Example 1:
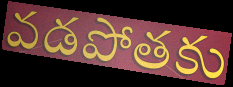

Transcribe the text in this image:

వడపోతకు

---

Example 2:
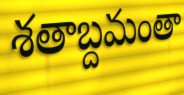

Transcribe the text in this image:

శతాబ్దమంతా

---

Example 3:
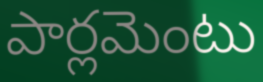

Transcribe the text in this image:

పార్లమెంటు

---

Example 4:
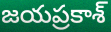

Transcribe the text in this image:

జయప్రకాశ్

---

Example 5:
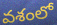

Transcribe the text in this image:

వశంలో